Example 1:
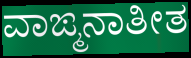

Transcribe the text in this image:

ವಾಙ್ಮನಾತೀತ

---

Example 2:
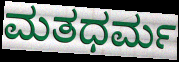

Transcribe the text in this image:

ಮತಧರ್ಮ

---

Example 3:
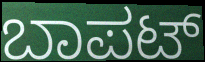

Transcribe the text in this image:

ಬಾಪಟ್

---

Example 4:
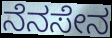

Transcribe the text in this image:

ನೆನಸೇನ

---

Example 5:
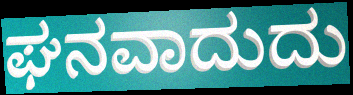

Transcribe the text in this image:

ಘನವಾದುದು